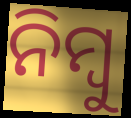
ନିମ୍ବୁ